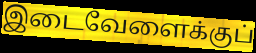
இடைவேளைக்குப்